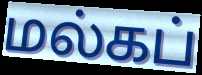
மல்கப்